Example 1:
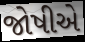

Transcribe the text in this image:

જોષીએ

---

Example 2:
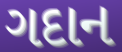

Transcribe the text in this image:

ગદાન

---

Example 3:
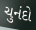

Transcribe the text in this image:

ચુનંદો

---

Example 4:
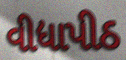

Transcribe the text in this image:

વીદ્યાપીઠ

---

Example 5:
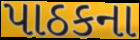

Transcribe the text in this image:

પાઠકના